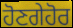
ਹੋਣਗੇਹੋਰ